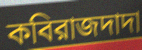
কবিরাজদাদা